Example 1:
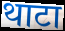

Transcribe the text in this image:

थाटा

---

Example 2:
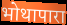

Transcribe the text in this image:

भोथापारा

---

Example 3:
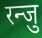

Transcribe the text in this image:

रन्जु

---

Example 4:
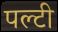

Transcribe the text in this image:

पल्टी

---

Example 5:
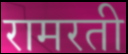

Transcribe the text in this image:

रामरती